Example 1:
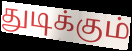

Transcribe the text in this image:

துடிக்கும்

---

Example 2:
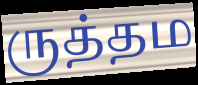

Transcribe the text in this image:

ருத்தம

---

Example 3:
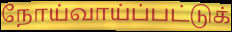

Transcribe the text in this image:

நோய்வாய்ப்பட்டுக்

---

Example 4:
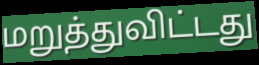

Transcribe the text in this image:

மறுத்துவிட்டது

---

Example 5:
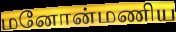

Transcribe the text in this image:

மனோன்மணிய